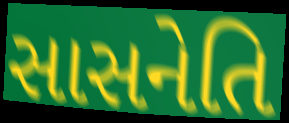
સાસનેતિ